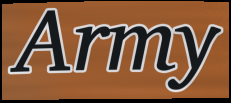
Army